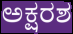
ಅಕ್ಷರಶ